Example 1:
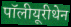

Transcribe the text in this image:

पॉलीयूरीथेन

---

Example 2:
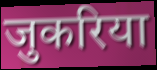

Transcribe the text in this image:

जुकरिया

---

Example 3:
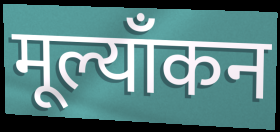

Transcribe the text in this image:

मूल्याँकन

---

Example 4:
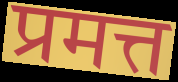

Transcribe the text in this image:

प्रमत्त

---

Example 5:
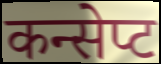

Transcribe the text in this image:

कन्सेप्ट